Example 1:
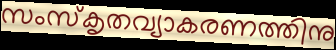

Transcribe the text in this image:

സംസ്കൃതവ്യാകരണത്തിനു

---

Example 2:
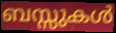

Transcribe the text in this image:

ബസ്സുകൾ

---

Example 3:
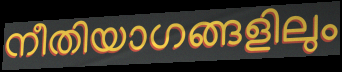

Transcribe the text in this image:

നീതിയാഗങ്ങളിലും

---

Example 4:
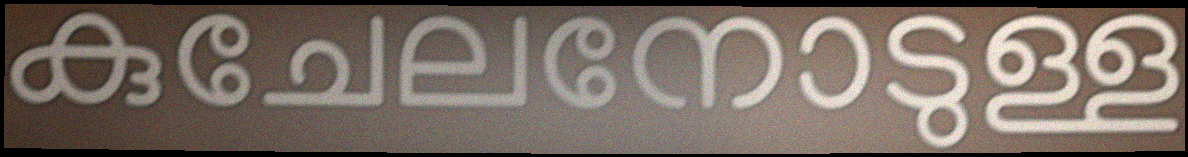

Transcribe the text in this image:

കുചേലനോടുള്ള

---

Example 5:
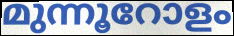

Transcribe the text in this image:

മുന്നൂറോളം